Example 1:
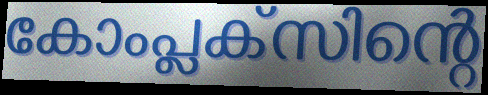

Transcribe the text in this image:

കോംപ്ലക്‌സിന്റെ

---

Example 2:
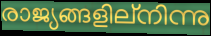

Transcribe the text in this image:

രാജ്യങ്ങളില്നിന്നു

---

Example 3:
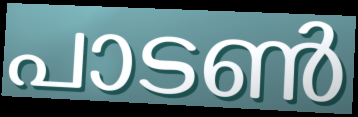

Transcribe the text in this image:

പാടൺ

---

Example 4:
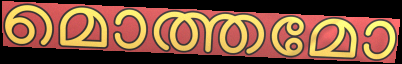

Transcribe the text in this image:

മൊത്തമോ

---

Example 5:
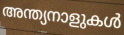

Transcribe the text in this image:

അന്ത്യനാളുകൾ